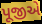
પૂજીએ